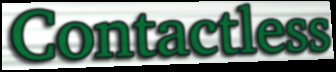
Contactless